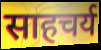
साहचर्य